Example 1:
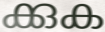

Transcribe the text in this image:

ക്കുക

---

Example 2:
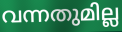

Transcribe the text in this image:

വന്നതുമില്ല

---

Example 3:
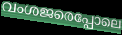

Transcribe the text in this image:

വംശജരെപ്പോലെ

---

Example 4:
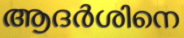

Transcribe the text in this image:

ആദർശിനെ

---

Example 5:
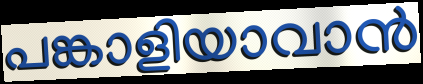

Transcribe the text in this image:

പങ്കാളിയാവാൻ